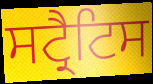
ਸਟ੍ਰੈਟਿਸ